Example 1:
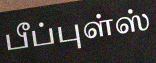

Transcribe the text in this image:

பீப்புள்ஸ்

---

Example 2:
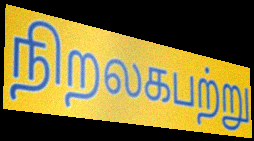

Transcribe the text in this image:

நிறலகபற்று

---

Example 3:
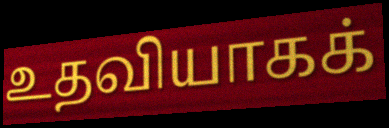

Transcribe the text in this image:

உதவியாகக்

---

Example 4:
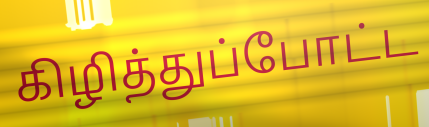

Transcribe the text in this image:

கிழித்துப்போட்ட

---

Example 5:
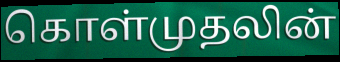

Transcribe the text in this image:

கொள்முதலின்